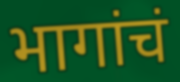
भागांचं